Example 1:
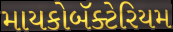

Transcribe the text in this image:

માયકોબૅક્ટેરિયમ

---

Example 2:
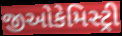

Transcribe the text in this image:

જીઓકેમિસ્ટ્રી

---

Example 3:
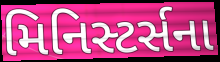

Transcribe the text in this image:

મિનિસ્ટર્સના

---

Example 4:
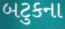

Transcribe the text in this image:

બટુકના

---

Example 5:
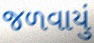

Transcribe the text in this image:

જળવાયું